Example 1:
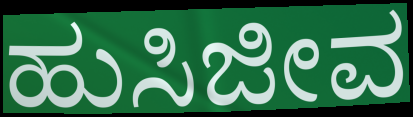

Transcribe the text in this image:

ಹುಸಿಜೀವ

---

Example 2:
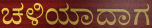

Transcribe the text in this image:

ಚಳಿಯಾದಾಗ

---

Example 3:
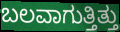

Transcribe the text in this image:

ಬಲವಾಗುತ್ತಿತ್ತು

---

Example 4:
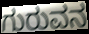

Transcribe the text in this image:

ಗುರುವನ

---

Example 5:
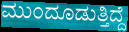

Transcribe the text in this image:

ಮುಂದೂಡುತ್ತಿದ್ದೆ